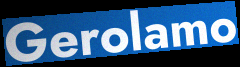
Gerolamo